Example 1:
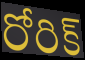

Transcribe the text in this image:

రోరిక్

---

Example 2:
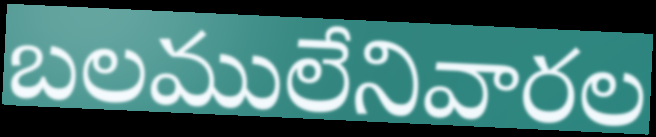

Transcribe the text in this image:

బలములేనివారల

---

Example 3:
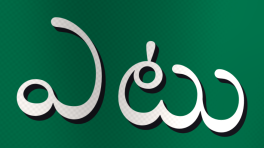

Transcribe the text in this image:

ఎటు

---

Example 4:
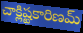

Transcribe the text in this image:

చాక్లిష్టకారిణమ్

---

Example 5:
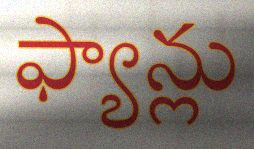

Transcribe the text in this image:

ఫ్యాన్లు